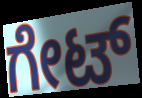
ಗೇಟ್